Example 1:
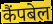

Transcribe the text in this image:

कैंपबेल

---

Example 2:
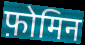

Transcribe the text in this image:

फ़ोमिन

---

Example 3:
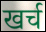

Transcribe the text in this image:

खर्च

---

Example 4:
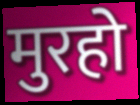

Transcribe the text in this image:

मुरहो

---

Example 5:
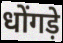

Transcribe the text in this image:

धोंगड़े